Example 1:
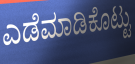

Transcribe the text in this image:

ಎಡೆಮಾಡಿಕೊಟ್ಟು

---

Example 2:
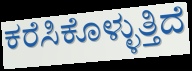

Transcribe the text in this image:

ಕರೆಸಿಕೊಳ್ಳುತ್ತಿದೆ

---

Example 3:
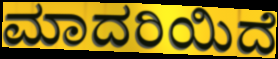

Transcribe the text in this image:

ಮಾದರಿಯಿದೆ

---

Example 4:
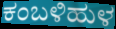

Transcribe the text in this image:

ಕಂಬಳಿಹುಳ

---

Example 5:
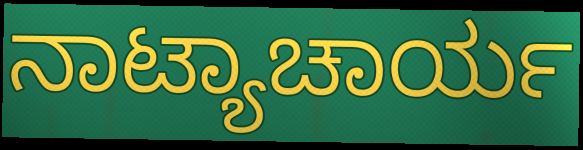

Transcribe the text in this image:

ನಾಟ್ಯಾಚಾರ್ಯ